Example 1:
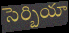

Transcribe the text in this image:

సెర్బియా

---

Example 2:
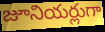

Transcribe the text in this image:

జూనియర్లుగా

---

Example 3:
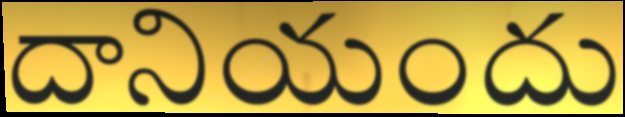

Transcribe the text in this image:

దానియందు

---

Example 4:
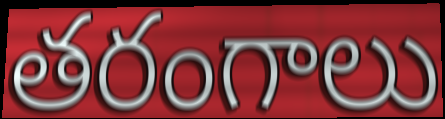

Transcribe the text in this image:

తరంగాలు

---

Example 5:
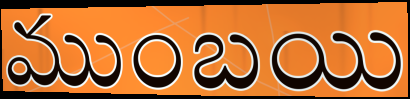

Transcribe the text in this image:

ముంబయి